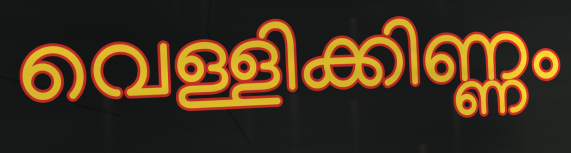
വെള്ളിക്കിണ്ണം